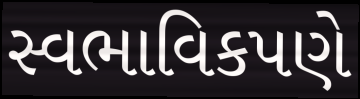
સ્વભાવિકપણે